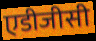
एडीजीसी